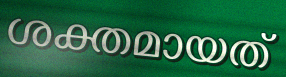
ശക്തമായത്